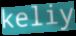
keliy